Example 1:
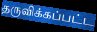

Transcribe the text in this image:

தருவிக்கப்பட்ட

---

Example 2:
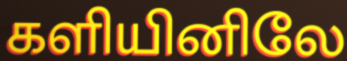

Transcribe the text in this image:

களியினிலே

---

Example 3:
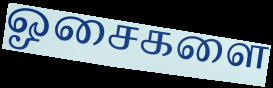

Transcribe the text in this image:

ஓசைகளை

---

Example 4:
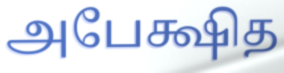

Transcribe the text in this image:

அபேக்ஷித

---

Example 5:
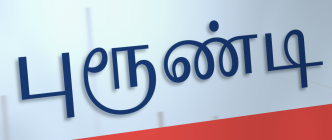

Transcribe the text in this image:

புரூண்டி